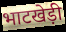
भाटखेड़ी